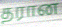
தரான